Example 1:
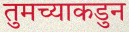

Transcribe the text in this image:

तुमच्याकडुन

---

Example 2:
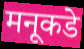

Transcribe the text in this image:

मनूकडे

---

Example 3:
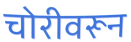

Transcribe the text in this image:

चोरीवरून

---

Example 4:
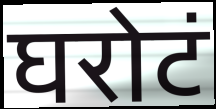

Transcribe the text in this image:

घरोटं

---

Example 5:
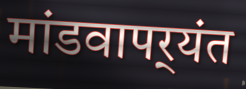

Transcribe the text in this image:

मांडवापर्यंत